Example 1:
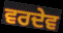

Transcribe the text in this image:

ਵਰਦੇਵ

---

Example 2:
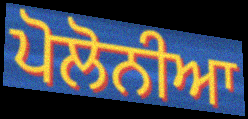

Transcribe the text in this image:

ਪੋਲੋਨੀਆ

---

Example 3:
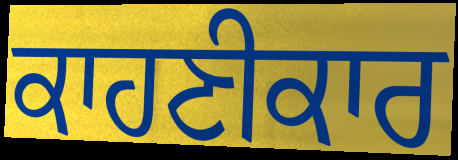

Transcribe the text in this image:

ਕਾਹਣੀਕਾਰ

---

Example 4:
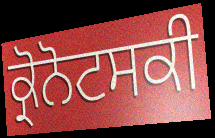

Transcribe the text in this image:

ਕ੍ਰੋਨੋਟਸਕੀ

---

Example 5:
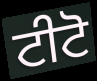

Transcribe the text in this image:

ਟੀਟੋ